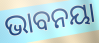
ଭାବନୟା